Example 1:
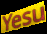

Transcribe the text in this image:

Yesu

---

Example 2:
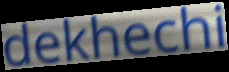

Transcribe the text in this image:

dekhechi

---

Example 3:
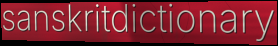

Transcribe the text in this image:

sanskritdictionary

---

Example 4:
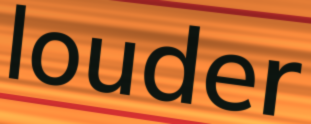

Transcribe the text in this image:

louder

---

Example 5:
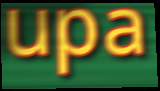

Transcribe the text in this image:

upa